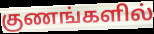
குணங்களில்